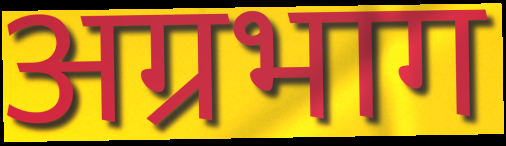
अग्रभाग